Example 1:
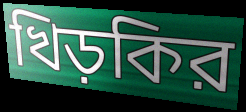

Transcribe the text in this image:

খিড়কির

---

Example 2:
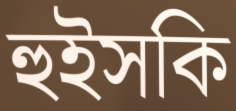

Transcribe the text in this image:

হুইসকি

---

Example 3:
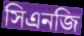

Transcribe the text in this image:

সিএনজি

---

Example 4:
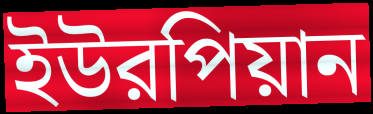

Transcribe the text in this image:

ইউরপিয়ান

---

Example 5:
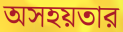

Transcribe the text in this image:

অসহয়তার